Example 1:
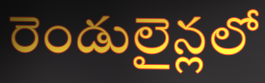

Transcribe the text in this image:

రెండులైన్లలో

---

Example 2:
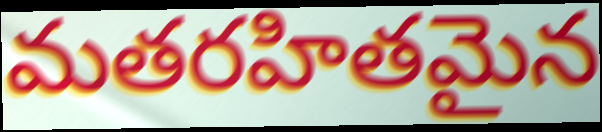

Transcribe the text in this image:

మతరహితమైన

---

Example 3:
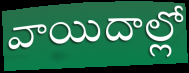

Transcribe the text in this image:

వాయిదాల్లో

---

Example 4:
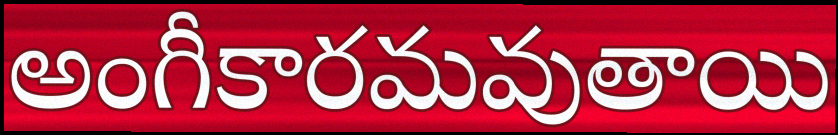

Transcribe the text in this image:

అంగీకారమవుతాయి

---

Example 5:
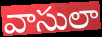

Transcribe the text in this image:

వాసులా